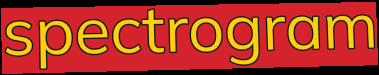
spectrogram